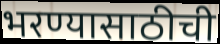
भरण्यासाठीची